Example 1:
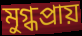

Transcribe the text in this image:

মুগ্ধপ্রায়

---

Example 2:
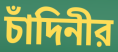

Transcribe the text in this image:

চাঁদিনীর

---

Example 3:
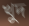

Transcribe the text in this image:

খুদ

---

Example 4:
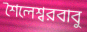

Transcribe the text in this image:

শৈলেশ্বরবাবু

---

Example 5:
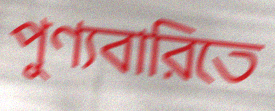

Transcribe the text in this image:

পুণ্যবারিতে